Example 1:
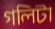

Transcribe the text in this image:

গলিটা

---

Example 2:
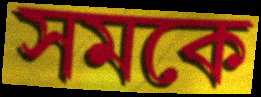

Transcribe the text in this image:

সমকে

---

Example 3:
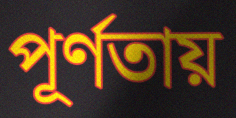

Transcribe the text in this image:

পূর্ণতায়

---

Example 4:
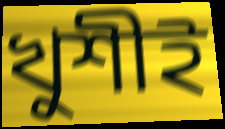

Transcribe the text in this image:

খুশীই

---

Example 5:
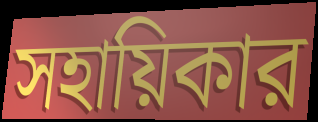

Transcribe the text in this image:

সহায়িকার